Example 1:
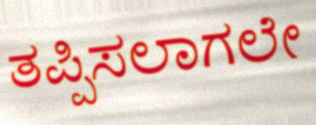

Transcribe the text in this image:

ತಪ್ಪಿಸಲಾಗಲೇ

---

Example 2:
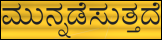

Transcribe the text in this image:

ಮುನ್ನಡೆಸುತ್ತದೆ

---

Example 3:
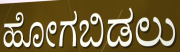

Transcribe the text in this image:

ಹೋಗಬಿಡಲು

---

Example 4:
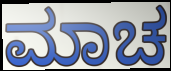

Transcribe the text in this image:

ಮಾಚ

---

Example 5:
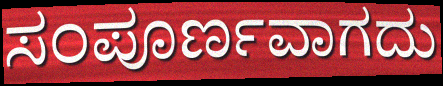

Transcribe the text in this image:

ಸಂಪೂರ್ಣವಾಗದು